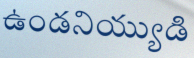
ఉండనియ్యుడి